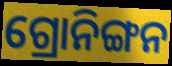
ଗ୍ରୋନିଙ୍ଗନ